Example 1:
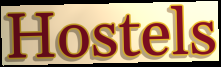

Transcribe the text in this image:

Hostels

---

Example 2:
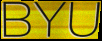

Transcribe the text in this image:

BYU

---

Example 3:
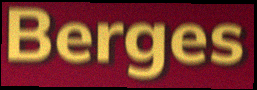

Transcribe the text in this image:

Berges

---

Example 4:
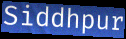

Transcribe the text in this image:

Siddhpur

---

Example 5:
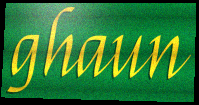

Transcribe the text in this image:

ghaun